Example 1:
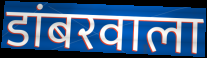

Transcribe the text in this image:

डांबरवाला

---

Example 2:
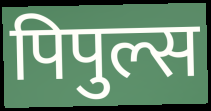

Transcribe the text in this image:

पिपुल्स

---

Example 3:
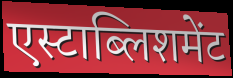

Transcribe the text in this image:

एस्टाब्लिशमेंट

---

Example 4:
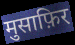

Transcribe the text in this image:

मुसाफ़िर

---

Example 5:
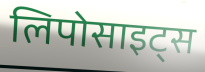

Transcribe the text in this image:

लिपोसाइट्स